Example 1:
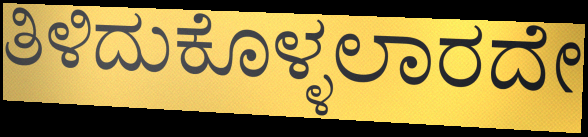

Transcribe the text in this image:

ತಿಳಿದುಕೊಳ್ಳಲಾರದೇ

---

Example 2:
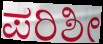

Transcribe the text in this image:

ಪರಿಶೀ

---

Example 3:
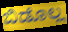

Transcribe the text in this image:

ಬಿಡೊಲ್ಲ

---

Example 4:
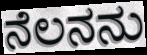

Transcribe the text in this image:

ನೆಲನನು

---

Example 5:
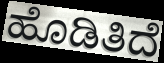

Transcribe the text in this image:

ಹೊಡಿತಿದೆ